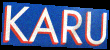
KARU